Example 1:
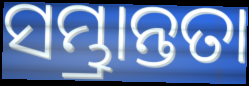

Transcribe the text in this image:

ସମ୍ଭ୍ରାନ୍ତତା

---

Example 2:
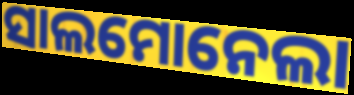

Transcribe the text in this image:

ସାଲମୋନେଲା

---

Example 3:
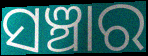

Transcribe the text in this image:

ସଞ୍ଚାର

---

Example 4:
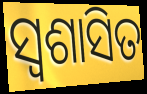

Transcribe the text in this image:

ସ୍ୱଶାସିତ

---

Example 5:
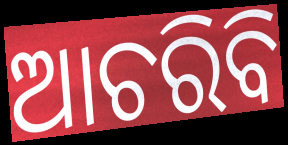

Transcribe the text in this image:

ଆଚରିବି